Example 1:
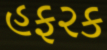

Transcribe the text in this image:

હફરક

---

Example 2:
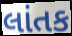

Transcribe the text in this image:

લાંતક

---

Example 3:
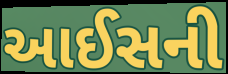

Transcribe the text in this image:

આઈસની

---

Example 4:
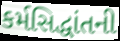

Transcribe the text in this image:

કર્મસિદ્ધાંતની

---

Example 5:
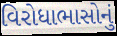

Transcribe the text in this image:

વિરોધાભાસોનું